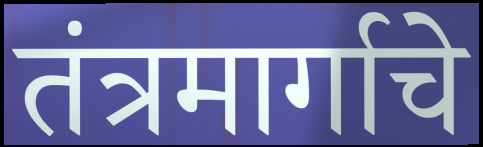
तंत्रमार्गाचे